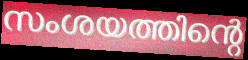
സംശയത്തിന്റെ